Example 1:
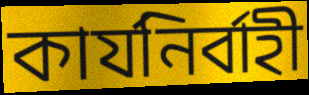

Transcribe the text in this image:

কার্যনির্বাহী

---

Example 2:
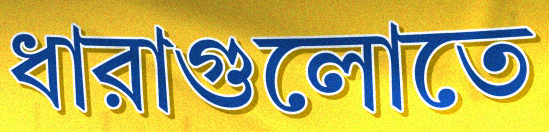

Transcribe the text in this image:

ধারাগুলোতে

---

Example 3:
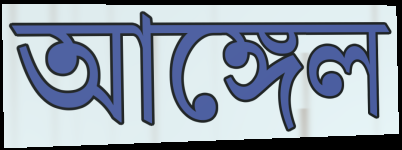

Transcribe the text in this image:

আঙ্গেল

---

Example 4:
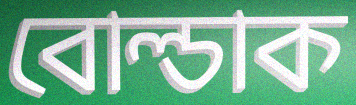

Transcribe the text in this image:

বোল্ডাক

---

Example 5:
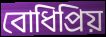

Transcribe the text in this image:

বোধিপ্রিয়